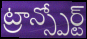
ట్రాన్స్పోర్ట్